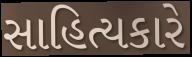
સાહિત્યકારે